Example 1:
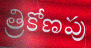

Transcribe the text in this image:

త్రికోణపు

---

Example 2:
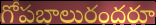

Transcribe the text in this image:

గోపబాలురందరూ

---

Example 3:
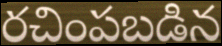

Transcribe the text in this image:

రచింపబడిన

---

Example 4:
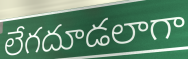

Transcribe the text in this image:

లేగదూడలాగా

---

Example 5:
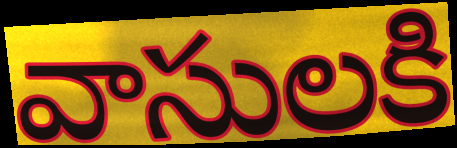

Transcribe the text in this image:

వాసులకి